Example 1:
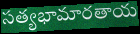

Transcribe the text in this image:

సత్యభామారతాయ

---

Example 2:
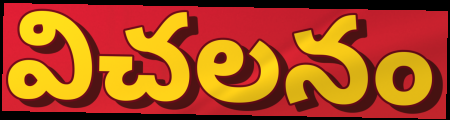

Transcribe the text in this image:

విచలనం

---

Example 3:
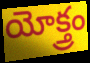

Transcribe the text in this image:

యోక్త్రం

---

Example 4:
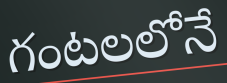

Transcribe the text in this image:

గంటలలోనే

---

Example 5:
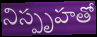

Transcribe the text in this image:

నిస్పృహతో